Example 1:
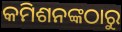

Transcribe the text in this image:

କମିଶନଙ୍କଠାରୁ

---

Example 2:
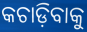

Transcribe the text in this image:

କଚାଡ଼ିବାକୁ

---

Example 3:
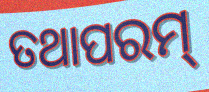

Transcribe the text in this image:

ତଥାପରମ୍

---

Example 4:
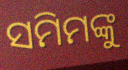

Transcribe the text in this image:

ସମିମଙ୍କୁ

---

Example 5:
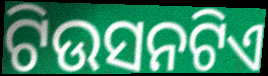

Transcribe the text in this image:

ଟିଉସନଟିଏ